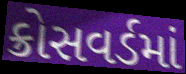
ક્રોસવર્ડમાં